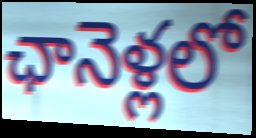
ఛానెళ్లలో